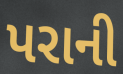
પરાની